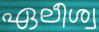
ഏലീശ്വ